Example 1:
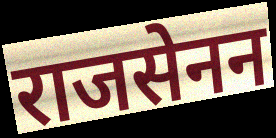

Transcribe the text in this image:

राजसेनन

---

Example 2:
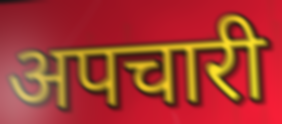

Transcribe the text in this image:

अपचारी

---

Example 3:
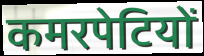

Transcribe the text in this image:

कमरपेटियों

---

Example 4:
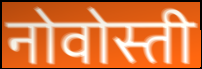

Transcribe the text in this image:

नोवोस्ती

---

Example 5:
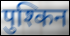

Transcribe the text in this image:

पुश्किन